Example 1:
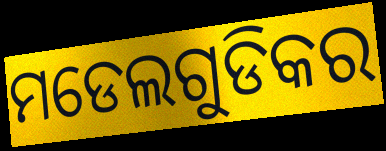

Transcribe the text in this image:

ମଡେଲଗୁଡିକର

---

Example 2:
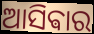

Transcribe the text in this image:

ଆସିଵାର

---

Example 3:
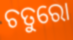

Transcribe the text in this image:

ଚତୁରୋ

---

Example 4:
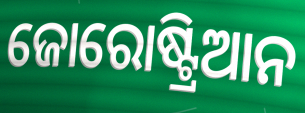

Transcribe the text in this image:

ଜୋରୋଷ୍ଟ୍ରିଆନ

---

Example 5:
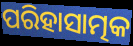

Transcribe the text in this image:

ପରିହାସାତ୍ମକ